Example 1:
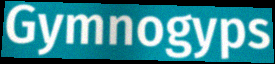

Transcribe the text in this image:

Gymnogyps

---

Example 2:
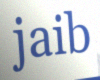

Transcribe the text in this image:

jaib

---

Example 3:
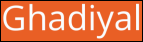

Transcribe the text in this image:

Ghadiyal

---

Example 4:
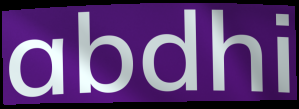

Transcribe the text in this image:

abdhi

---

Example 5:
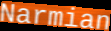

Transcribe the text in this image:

Narmian